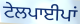
ਟੇਲਪਾਈਪਾਂ